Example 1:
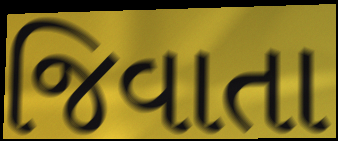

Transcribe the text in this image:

જિવાતા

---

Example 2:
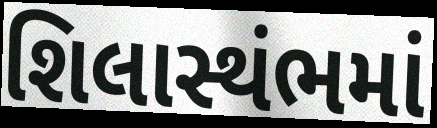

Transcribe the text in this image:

શિલાસ્થંભમાં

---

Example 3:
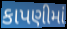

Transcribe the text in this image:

કાપણીમાં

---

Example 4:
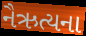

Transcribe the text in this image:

નૈઋત્યના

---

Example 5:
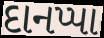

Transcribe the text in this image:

દાનપ્પા